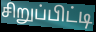
சிறுப்பிட்டி